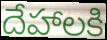
దేహాలకి